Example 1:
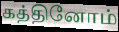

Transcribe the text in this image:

கத்தினோம்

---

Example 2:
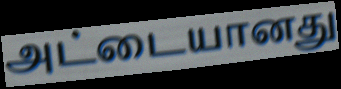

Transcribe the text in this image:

அட்டையானது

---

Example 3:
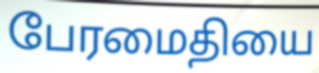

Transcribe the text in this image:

பேரமைதியை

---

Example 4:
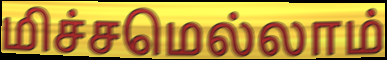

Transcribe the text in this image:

மிச்சமெல்லாம்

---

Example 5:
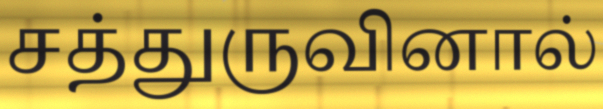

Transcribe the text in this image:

சத்துருவினால்